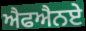
ਐਫਐਨਏ